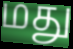
மது